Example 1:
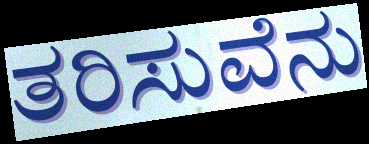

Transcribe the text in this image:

ತರಿಸುವೆನು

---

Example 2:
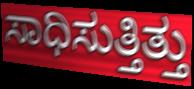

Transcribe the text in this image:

ಸಾಧಿಸುತ್ತಿತ್ತು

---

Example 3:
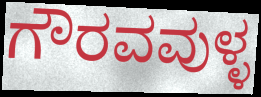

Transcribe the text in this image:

ಗೌರವವುಳ್ಳ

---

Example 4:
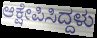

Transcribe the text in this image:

ಆಕ್ಷೇಪಿಸಿದ್ದಳು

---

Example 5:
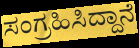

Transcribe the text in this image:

ಸಂಗ್ರಹಿಸಿದ್ದಾನೆ